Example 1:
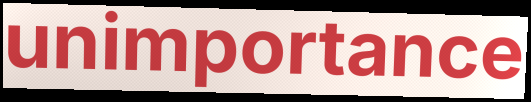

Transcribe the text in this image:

unimportance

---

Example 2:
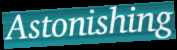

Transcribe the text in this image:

Astonishing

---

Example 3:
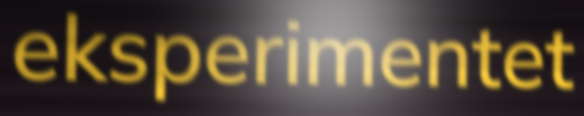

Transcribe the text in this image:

eksperimentet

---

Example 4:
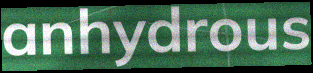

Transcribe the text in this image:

anhydrous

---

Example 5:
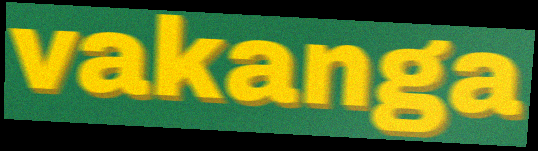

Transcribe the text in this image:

vakanga